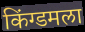
किंग्डमला